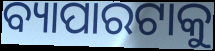
ବ୍ୟାପାରଟାକୁ